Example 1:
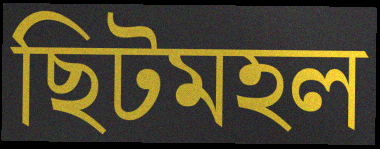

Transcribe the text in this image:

ছিটমহল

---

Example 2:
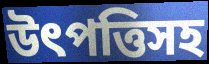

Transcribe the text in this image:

উৎপত্তিসহ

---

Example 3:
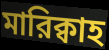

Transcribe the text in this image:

মারিক্বাহ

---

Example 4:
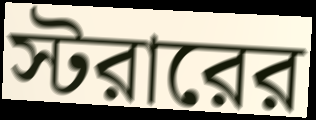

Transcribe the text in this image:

স্টরারের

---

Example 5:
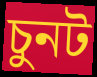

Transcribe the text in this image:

চুনট